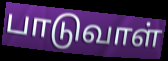
பாடுவாள்